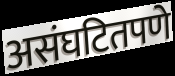
असंघटितपणे